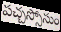
పచ్చస్సోసుం